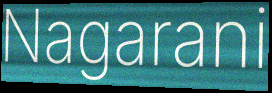
Nagarani